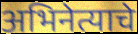
अभिनेत्याचे